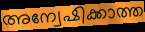
അന്വേഷിക്കാത്ത